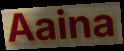
Aaina